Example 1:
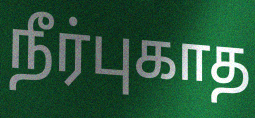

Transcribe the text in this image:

நீர்புகாத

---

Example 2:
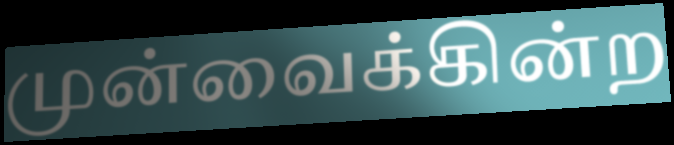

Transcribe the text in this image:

முன்வைக்கின்ற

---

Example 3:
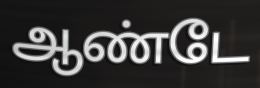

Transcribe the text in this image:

ஆண்டே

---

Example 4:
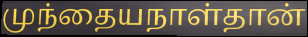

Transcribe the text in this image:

முந்தையநாள்தான்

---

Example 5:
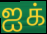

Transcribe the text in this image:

ஐக்